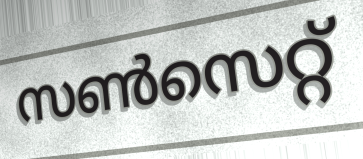
സൺസെറ്റ്